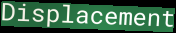
Displacement